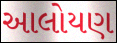
આલોયણ